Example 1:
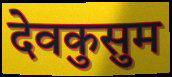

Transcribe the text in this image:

देवकुसुम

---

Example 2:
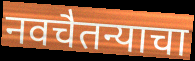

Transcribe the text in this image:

नवचैतन्याचा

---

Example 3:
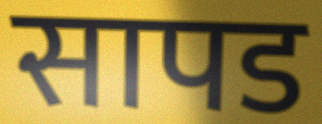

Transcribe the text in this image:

सापड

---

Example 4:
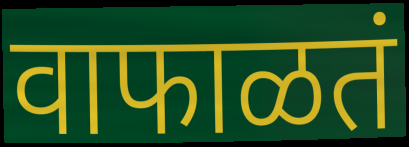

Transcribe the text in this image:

वाफाळतं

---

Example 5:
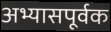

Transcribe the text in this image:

अभ्यासपूर्वक